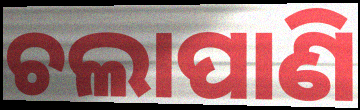
ଚଲାପାଣି